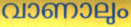
വാണാലും